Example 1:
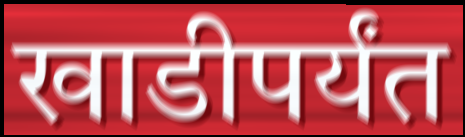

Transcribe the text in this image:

खाडीपर्यंत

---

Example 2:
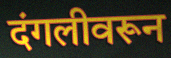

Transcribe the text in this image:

दंगलीवरून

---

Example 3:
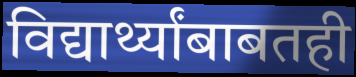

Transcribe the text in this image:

विद्यार्थ्यांबाबतही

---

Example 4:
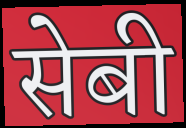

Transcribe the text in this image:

सेबी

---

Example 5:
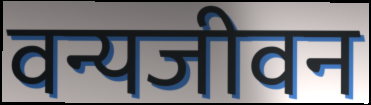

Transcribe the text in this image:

वन्यजीवन